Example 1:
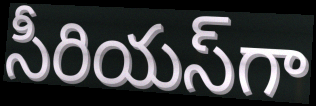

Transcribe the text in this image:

సీరియస్‌గా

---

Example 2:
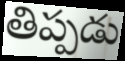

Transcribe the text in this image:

తిప్పడు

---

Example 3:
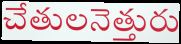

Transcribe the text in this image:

చేతులనెత్తురు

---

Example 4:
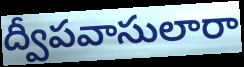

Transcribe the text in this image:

ద్వీపవాసులారా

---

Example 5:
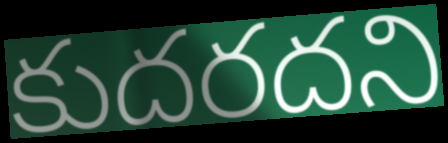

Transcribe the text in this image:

కుదరదని